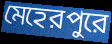
মেহেরপুরে